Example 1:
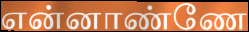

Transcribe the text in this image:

என்னாண்ணே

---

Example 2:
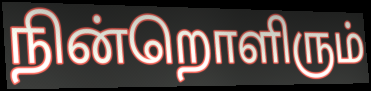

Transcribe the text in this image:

நின்றொளிரும்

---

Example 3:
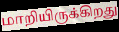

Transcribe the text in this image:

மாறியிருக்கிறது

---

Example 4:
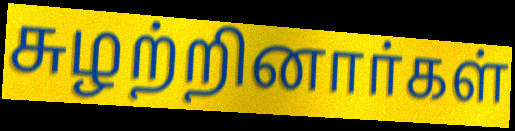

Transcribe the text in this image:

சுழற்றினார்கள்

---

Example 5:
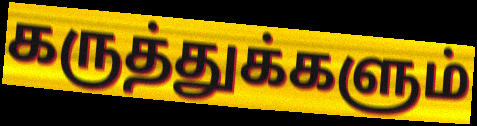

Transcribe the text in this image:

கருத்துக்களும்